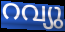
റവ്യു